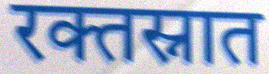
रक्तस्नात